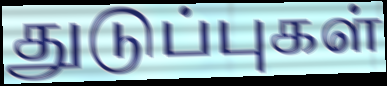
துடுப்புகள்